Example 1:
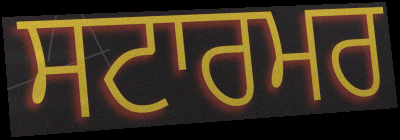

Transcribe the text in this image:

ਸਟਾਰਮਰ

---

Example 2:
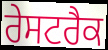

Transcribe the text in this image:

ਰੇਸਟਰੈਕ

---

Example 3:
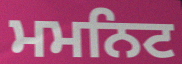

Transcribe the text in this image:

ਮਮਨਿਟ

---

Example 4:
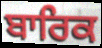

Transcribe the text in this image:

ਬਾਰਿਕ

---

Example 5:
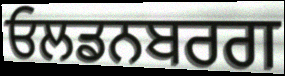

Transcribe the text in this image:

ਓਲਡਨਬਰਗ